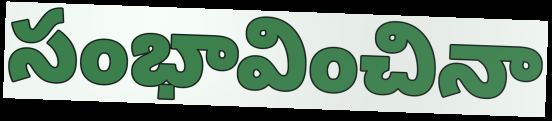
సంభావించినా